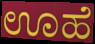
ಊಹೆ